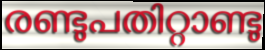
രണ്ടുപതിറ്റാണ്ടു